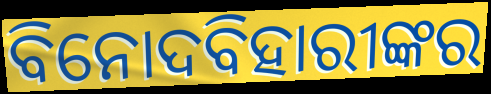
ବିନୋଦବିହାରୀଙ୍କର